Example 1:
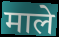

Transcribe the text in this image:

माले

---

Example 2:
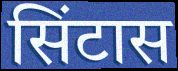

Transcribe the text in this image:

सिंटास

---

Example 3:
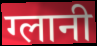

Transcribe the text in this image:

ग्लानी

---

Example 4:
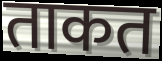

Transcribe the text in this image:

ताकत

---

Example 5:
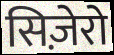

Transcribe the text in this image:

सिज़ेरो